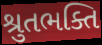
શ્રુતભક્તિ